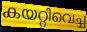
കയറ്റിവെച്ച